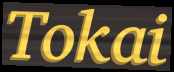
Tokai